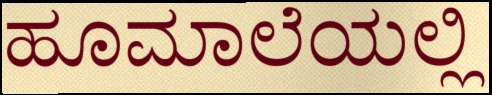
ಹೂಮಾಲೆಯಲ್ಲಿ